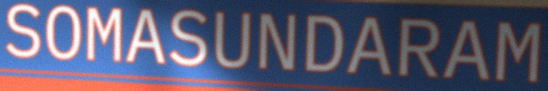
SOMASUNDARAM